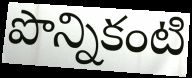
పొన్నికంటి